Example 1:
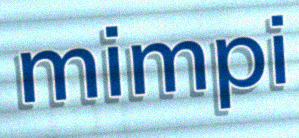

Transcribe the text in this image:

mimpi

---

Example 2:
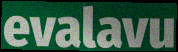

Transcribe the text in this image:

evalavu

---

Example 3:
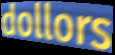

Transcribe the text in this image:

dollors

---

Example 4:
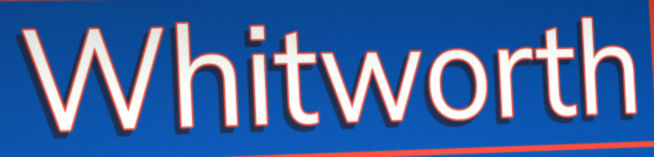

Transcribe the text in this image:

Whitworth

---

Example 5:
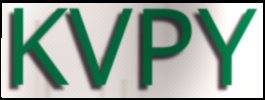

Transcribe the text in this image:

KVPY